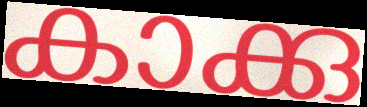
കാക്കു